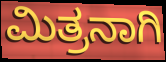
ಮಿತ್ರನಾಗಿ